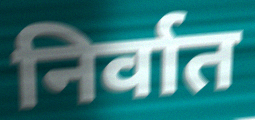
निर्वात